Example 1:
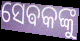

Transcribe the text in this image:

ସେଵକଙ୍କୁ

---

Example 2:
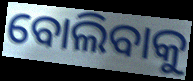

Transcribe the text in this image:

ବୋଲିବାକୁ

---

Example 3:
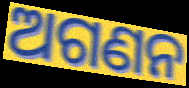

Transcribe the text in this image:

ଅଗଣନ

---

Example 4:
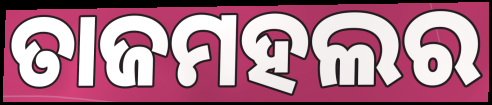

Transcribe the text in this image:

ତାଜମହଲର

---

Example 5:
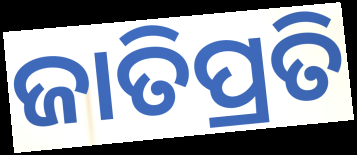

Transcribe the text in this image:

ଜାତିପ୍ରତି